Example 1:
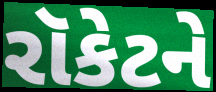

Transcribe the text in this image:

રૉકેટને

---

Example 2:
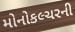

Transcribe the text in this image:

મોનોકલ્ચરની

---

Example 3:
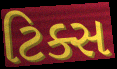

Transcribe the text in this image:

ટિક્સ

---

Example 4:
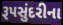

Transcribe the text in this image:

રૂપસુંદરીના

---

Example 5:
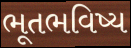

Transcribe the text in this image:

ભૂતભવિષ્ય